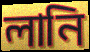
লানি